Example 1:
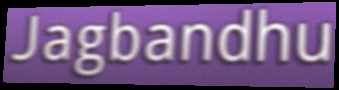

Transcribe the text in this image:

Jagbandhu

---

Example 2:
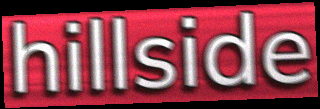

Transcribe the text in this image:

hillside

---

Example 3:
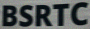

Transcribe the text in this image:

BSRTC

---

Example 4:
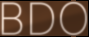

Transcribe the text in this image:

BDO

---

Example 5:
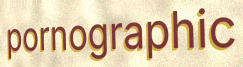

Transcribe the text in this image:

pornographic